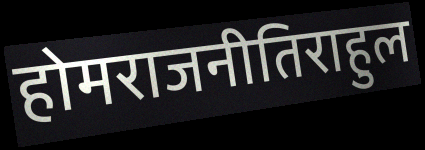
होमराजनीतिराहुल